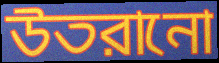
উতরানো